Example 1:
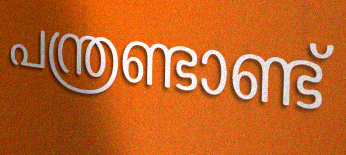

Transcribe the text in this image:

പന്ത്രണ്ടാണ്ട്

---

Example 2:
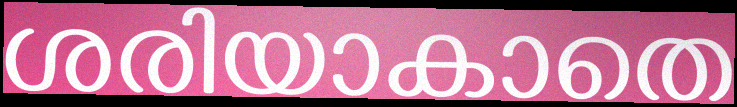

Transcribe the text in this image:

ശരിയാകാതെ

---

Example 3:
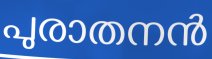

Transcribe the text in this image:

പുരാതനൻ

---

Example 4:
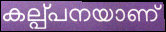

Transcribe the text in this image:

കല്പ്പനയാണ്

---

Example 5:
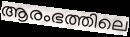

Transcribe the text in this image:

ആരംഭത്തിലെ